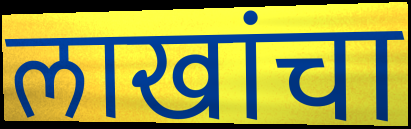
लाखांचा